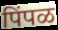
पिंपळ